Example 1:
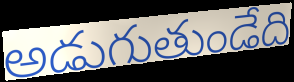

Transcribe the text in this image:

అడుగుతుండేది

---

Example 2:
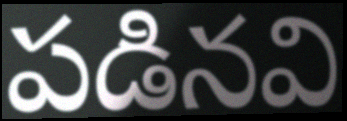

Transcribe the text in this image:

పడినవి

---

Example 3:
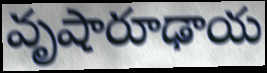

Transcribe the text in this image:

వృషారూఢాయ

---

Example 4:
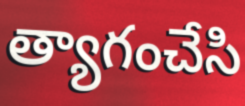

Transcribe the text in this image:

త్యాగంచేసి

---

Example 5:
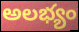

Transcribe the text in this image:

అలభ్యం